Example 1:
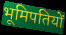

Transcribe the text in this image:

भूमिपतियों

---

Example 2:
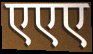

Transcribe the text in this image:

एएए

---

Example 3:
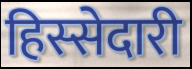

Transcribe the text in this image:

हिस्‍सेदारी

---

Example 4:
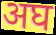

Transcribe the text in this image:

अघ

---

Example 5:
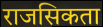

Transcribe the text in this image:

राजसिकता